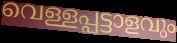
വെള്ളപ്പട്ടാളവും